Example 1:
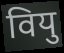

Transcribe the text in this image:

वियु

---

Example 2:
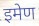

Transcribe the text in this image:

इमेण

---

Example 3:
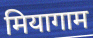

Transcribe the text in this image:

मियागाम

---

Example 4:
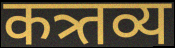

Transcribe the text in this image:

कत्र्तव्य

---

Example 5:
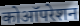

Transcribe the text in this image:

कोऑपरेशन